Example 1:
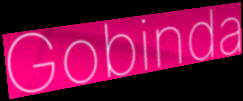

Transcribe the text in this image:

Gobinda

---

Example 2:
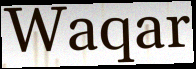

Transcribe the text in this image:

Waqar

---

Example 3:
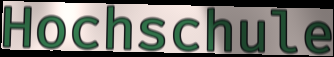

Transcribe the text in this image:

Hochschule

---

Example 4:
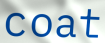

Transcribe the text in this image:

coat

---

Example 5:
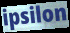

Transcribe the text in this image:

ipsilon